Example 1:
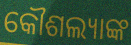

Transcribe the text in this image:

କୌଶଲ୍ୟାଙ୍କ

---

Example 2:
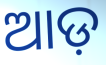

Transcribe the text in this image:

ଆଡ଼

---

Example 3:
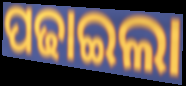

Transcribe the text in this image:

ପଢାଇଲା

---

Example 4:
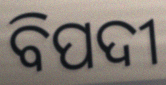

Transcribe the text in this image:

ବିପଦୀ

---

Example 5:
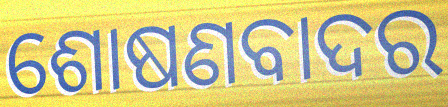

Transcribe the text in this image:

ଶୋଷଣବାଦର